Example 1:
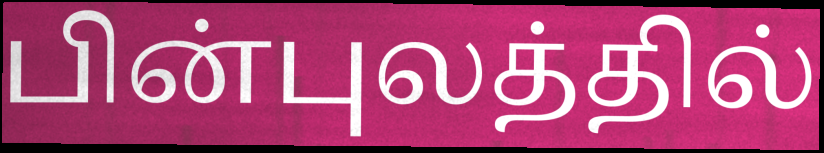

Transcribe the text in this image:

பின்புலத்தில்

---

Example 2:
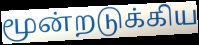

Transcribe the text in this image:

மூன்றடுக்கிய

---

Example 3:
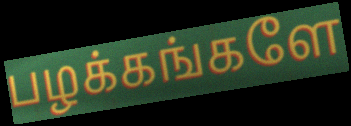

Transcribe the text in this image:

பழக்கங்களே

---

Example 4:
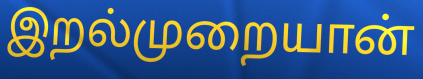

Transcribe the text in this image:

இறல்முறையான்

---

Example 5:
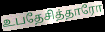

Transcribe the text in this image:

உபதேசித்தாரோ